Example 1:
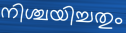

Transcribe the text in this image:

നിശ്ചയിച്ചതും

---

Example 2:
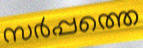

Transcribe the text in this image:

സർപ്പത്തെ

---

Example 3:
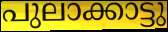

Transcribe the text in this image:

പുലാക്കാട്ടു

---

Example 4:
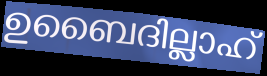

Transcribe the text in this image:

ഉബൈദില്ലാഹ്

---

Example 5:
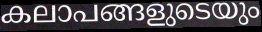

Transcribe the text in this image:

കലാപങ്ങളുടെയും